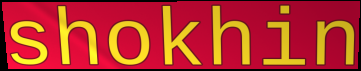
shokhin